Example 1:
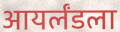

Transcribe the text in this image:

आयर्लंडला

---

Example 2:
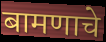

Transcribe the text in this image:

बामणाचे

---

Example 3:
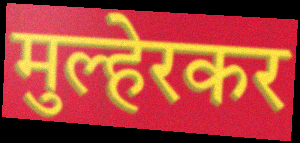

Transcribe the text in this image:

मुल्हेरकर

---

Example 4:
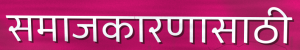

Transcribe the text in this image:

समाजकारणासाठी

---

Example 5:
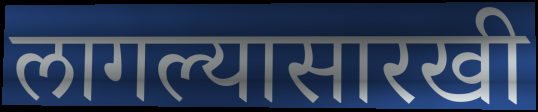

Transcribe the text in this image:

लागल्यासारखी